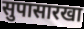
सुपासारखा